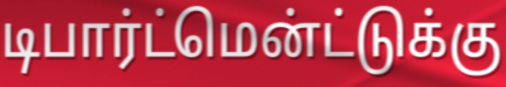
டிபார்ட்மென்ட்டுக்கு